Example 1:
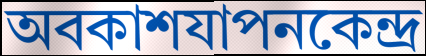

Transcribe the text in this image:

অবকাশযাপনকেন্দ্র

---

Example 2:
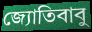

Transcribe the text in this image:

জ্যোতিবাবু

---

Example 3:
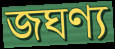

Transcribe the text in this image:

জঘণ্য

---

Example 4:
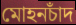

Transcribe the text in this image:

মোহনচাঁদ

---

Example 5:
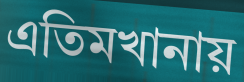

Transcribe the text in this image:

এতিমখানায়